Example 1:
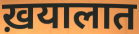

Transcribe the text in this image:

ख़यालात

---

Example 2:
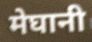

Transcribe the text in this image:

मेघानी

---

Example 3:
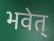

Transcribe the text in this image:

भवेत्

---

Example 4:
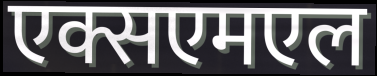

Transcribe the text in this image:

एक्सएमएल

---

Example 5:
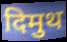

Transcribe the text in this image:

दिमुथ